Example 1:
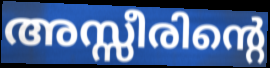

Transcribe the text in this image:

അസ്സീരിന്റെ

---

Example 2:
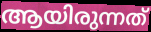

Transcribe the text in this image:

ആയിരുന്നത്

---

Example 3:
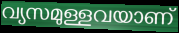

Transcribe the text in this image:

വ്യസമുള്ളവയാണ്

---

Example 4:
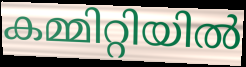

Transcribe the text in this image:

കമ്മിറ്റിയിൽ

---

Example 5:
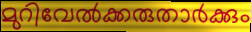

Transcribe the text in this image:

മുറിവേൽക്കരുതാർക്കും